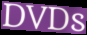
DVDs